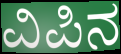
ವಿಪಿನ